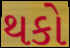
થકો